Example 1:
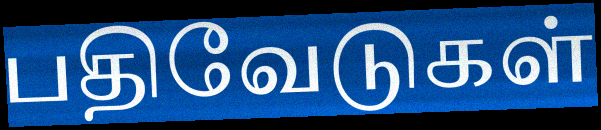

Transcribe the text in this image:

பதிவேடுகள்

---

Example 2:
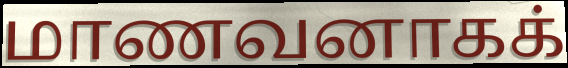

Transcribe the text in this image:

மாணவனாகக்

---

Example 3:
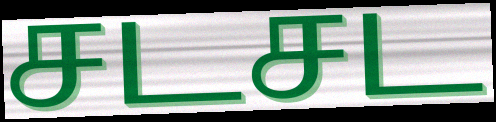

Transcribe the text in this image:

சடசட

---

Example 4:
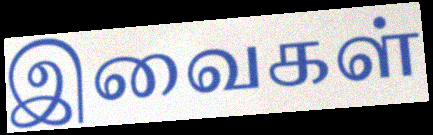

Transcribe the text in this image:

இவைகள்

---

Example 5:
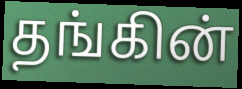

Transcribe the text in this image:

தங்கின்